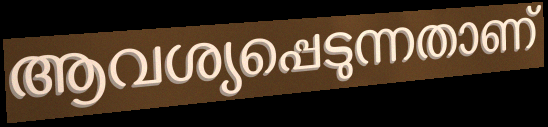
ആവശ്യപ്പെടുന്നതാണ്